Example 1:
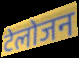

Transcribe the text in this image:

टेलोजन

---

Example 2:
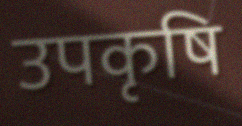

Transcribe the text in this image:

उपकृषि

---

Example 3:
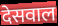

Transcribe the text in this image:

देसवाल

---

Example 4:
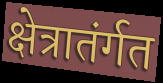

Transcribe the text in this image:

क्षेत्रातंर्गत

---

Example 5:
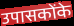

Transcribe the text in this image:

उपासकोंके